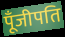
पूँजीपति